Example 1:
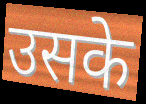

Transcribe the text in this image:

उसके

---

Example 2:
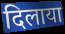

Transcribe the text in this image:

दिलाया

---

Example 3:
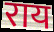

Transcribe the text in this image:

राय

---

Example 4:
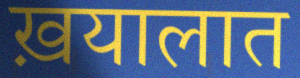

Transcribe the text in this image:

ख़यालात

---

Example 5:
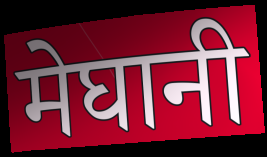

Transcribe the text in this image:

मेघानी